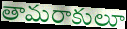
తామరాకులూ